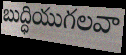
బుద్ధియుగలవా